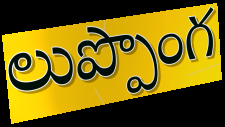
లుప్పొంగ